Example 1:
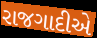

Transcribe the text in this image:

રાજગાદીએ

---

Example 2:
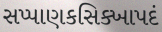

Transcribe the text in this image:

સપ્પાણકસિક્ખાપદં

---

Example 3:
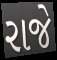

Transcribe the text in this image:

રાજે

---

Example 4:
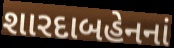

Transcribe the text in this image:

શારદાબહેનનાં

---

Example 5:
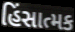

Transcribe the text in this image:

હિંસાત્મક